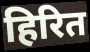
हिरित